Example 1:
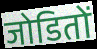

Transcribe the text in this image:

जोडितों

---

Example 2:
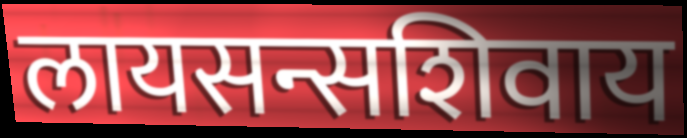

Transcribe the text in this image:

लायसन्सशिवाय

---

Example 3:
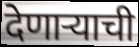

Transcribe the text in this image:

देणाऱ्याची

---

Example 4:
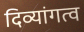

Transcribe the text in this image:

दिव्यांगत्व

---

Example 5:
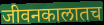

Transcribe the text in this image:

जीवनकालातच